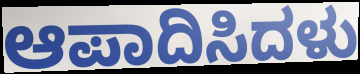
ಆಪಾದಿಸಿದಳು